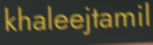
khaleejtamil